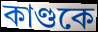
কাণ্ডকে